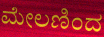
ಮೇಲಣಿಂದ